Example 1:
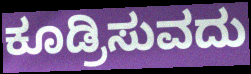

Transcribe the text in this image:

ಕೂಡ್ರಿಸುವದು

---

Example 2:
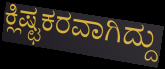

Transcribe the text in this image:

ಕ್ಲಿಷ್ಟಕರವಾಗಿದ್ದು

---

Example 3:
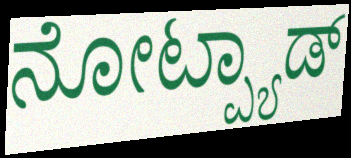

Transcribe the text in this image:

ನೋಟ್ಪ್ಯಾಡ್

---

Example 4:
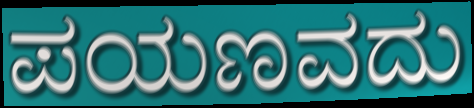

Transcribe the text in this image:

ಪಯಣವದು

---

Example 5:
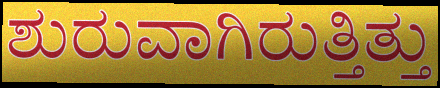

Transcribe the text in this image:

ಶುರುವಾಗಿರುತ್ತಿತ್ತು